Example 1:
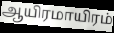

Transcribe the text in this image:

ஆயிரமாயிரம்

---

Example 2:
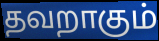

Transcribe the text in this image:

தவறாகும்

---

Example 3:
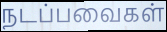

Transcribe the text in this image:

நடப்பவைகள்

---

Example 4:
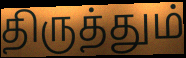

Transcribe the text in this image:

திருத்தும்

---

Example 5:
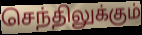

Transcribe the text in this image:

செந்திலுக்கும்